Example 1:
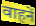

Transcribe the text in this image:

वाहनें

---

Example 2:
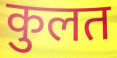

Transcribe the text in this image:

कुलत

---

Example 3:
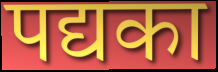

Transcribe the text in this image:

पद्यका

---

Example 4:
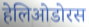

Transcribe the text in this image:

हेलिओडोरस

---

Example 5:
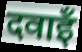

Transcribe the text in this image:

दवाइँ